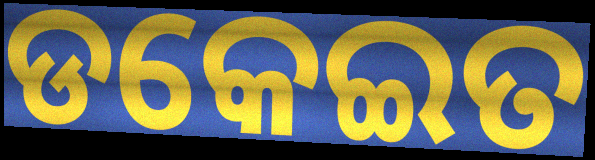
ଡକେଇତ